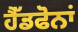
ਹੈੱਡਫੋਨਾਂ